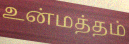
உன்மத்தம்